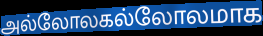
அல்லோலகல்லோலமாக